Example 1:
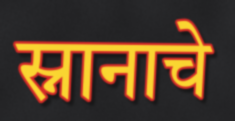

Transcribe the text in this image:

स्नानाचे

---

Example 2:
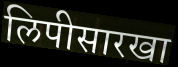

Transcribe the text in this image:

लिपीसारखा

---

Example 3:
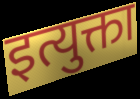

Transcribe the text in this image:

इत्युक्ता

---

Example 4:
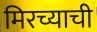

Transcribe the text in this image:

मिरच्याची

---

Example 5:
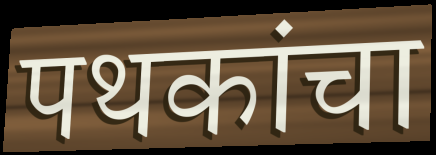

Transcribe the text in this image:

पथकांचा